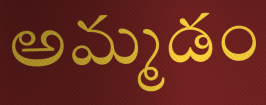
అమ్మడం